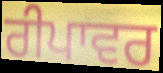
ਰੀਪਾਵਰ